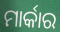
ମାର୍କାର